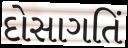
દોસાગતિં